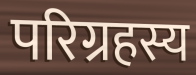
परिग्रहस्य